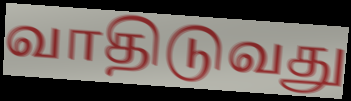
வாதிடுவது